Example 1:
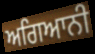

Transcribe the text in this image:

ਅਗਿਆਨੀ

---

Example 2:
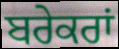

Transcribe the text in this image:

ਬਰੇਕਰਾਂ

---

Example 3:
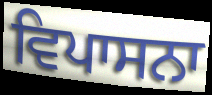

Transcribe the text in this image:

ਵਿਪਾਸਨਾ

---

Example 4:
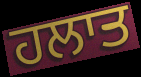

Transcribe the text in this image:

ਹਲਾਤ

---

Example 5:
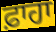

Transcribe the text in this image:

ਫ਼ਾਹਾ